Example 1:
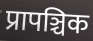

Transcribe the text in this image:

प्रापञ्चिक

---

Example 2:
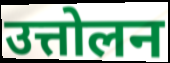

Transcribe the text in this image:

उत्तोलन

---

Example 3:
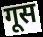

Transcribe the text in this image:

गूस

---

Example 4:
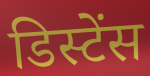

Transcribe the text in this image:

डिस्टेंस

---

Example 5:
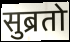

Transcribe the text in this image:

सुब्रतो